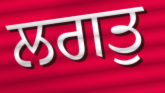
ਲਗਤੁ